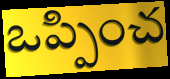
ఒప్పించ